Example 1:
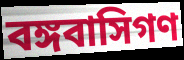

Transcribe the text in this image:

বঙ্গবাসিগণ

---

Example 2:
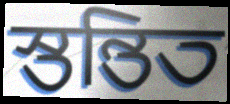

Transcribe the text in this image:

স্তন্তিত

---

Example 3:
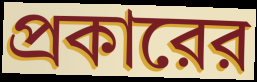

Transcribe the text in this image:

প্রকারের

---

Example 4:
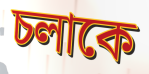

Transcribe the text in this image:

চলাকে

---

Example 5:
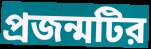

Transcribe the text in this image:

প্রজন্মটির